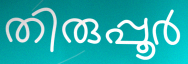
തിരുപ്പൂർ